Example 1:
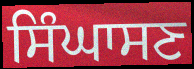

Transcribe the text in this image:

ਸਿੰਘਾਸਣ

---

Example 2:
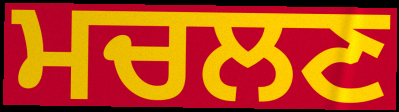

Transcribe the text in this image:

ਮਚਲਣ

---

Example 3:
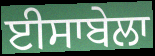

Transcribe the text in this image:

ਈਸਾਬੇਲਾ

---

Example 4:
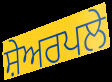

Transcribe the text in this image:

ਸ਼ੇਅਰਪਲੇ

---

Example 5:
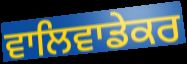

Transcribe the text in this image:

ਵਾਲਿਵਾਡੇਕਰ